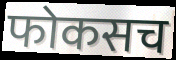
फोकसच